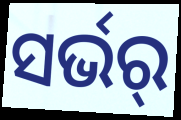
ସର୍ଭର୍